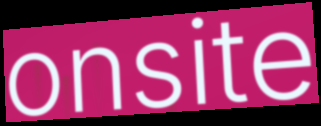
onsite